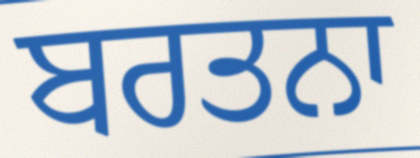
ਬਰਤਨਾ